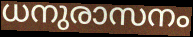
ധനുരാസനം